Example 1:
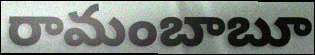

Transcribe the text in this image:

రామంబాబూ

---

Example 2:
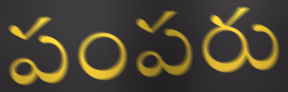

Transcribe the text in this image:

పంపరు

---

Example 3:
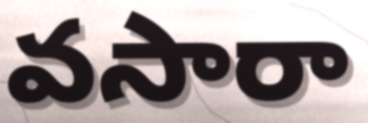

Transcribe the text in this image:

వసారా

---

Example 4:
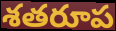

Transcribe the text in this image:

శతరూప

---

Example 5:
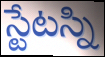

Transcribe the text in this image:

స్టేటస్ని